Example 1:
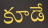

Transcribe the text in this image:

కూడే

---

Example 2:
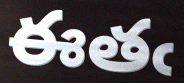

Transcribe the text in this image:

ఈతఁ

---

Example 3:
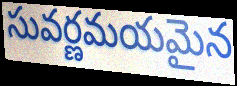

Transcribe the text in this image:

సువర్ణమయమైన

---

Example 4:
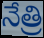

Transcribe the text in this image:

నేత్రి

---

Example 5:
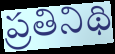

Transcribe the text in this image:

ప్రతినిథి